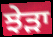
ਝੇੜਾ